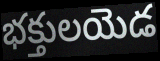
భక్తులయెడ